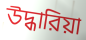
উদ্ধারিয়া